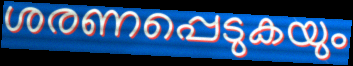
ശരണപ്പെടുകയും